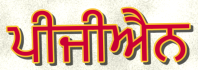
ਪੀਜੀਐਨ